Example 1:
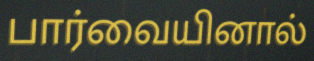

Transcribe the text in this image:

பார்வையினால்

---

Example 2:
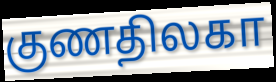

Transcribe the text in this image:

குணதிலகா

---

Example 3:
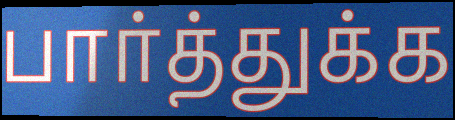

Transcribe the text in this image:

பார்த்துக்க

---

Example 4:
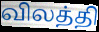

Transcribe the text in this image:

விலத்தி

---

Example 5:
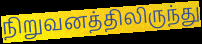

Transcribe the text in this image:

நிறுவனத்திலிருந்து